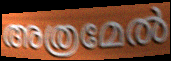
അത്രമേൽ